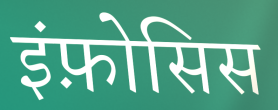
इंफ़ोसिस